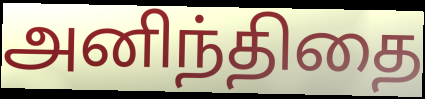
அனிந்திதை